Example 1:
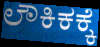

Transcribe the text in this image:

ಲೌಕಿಕಕ್ಕೆ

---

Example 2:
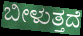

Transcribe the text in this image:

ಬೀಳುತ್ತದೆ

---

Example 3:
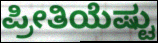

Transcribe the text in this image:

ಪ್ರೀತಿಯೆಷ್ಟು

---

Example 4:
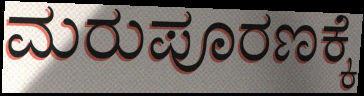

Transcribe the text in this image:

ಮರುಪೂರಣಕ್ಕೆ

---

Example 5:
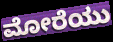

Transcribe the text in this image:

ಮೋರೆಯು